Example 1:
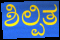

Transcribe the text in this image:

ಶಿಲ್ಪಿತ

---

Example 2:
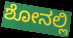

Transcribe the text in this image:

ಶೋನಲ್ಲಿ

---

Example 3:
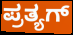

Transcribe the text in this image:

ಪ್ರತ್ಯಗ್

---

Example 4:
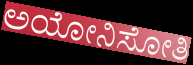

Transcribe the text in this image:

ಅಯೋನಿಸೋತಿ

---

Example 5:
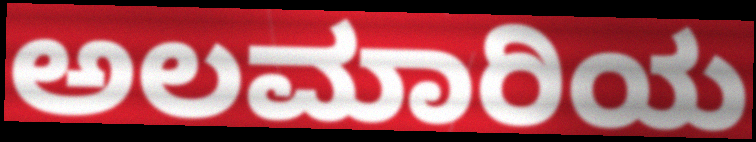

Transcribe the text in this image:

ಅಲಮಾರಿಯ